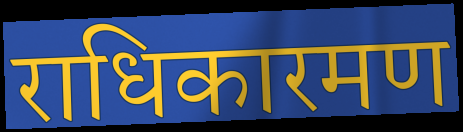
राधिकारमण